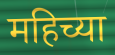
महिच्या